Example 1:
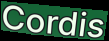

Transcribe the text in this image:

Cordis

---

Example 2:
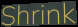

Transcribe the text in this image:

Shrink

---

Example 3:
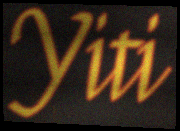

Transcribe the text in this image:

Yiti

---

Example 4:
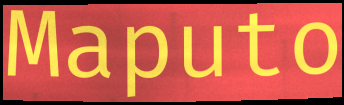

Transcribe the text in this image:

Maputo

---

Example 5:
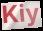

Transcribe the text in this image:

Kiy